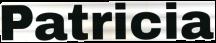
Patricia